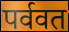
पर्ववत